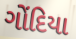
ગોંદિયા